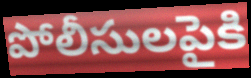
పోలీసులపైకి